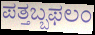
ಪತ್ತಬ್ಬಫಲಂ